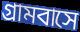
গ্রামবাসে